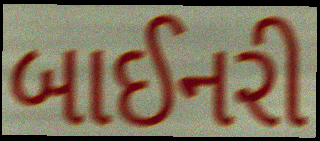
બાઈનરી